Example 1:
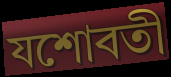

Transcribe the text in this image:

যশোবতী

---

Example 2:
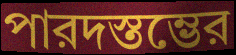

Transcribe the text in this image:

পারদস্তম্ভের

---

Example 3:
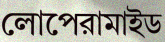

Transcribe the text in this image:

লোপেরামাইড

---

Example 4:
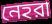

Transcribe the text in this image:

নেহরা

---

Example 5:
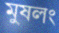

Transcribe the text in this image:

মুষলং